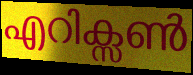
എറിക്സൺ